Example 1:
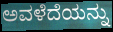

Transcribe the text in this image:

ಅವಳೆದೆಯನ್ನು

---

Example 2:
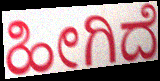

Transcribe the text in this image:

ಹೀಗಿದೆ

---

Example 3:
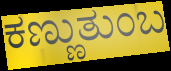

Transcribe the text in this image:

ಕಣ್ಣುತುಂಬ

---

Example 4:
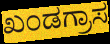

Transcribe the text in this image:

ಖಂಡಗ್ರಾಸ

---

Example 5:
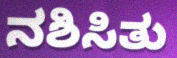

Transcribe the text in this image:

ನಶಿಸಿತು